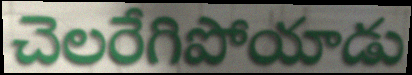
చెలరేగిపోయాడు